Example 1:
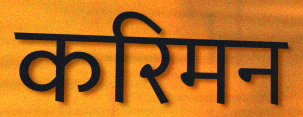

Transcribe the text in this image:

करिमन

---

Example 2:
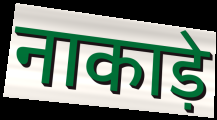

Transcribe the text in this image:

नाकाड़े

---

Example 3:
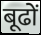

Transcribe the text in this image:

बूढों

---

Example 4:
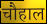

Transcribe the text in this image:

चौहाल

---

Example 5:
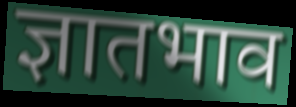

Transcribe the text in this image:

ज्ञातभाव